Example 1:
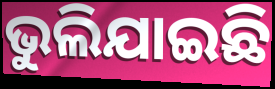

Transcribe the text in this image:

ଭୁଲିଯାଇଛି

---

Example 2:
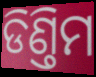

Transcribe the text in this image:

ଡିଣ୍ତିମ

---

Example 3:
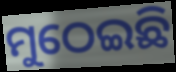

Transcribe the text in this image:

ମୁଠେଇଛି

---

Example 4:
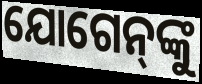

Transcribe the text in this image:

ଯୋଗେନ୍‌ଙ୍କୁ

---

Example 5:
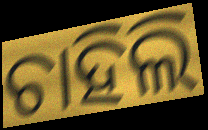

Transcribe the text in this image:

ଚାହିଲି